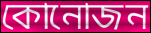
কোনোজন